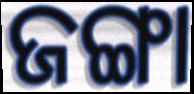
ଜଙ୍ଗା